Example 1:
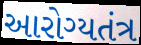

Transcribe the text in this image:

આરોગ્યતંત્ર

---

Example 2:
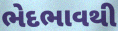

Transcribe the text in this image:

ભેદભાવથી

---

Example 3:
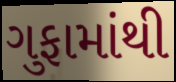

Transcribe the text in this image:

ગુફામાંથી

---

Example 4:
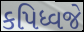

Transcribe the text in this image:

કપિધ્વજે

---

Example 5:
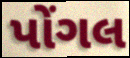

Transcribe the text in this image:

પોંગલ